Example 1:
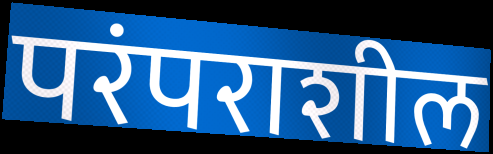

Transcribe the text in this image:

परंपराशील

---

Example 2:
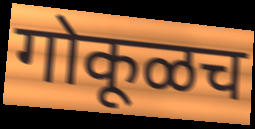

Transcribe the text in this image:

गोकूळच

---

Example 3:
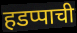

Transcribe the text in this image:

हडप्पाची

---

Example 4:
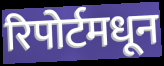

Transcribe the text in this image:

रिपोर्टमधून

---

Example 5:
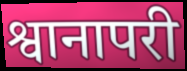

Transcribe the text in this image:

श्वानापरी